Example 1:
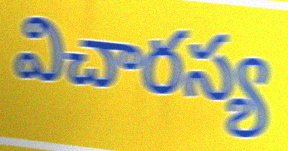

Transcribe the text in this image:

విచారస్య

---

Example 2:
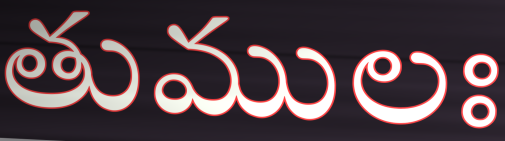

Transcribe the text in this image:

తుములః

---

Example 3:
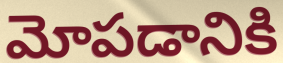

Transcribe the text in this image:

మోపడానికి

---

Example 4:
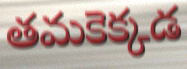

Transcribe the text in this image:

తమకెక్కడ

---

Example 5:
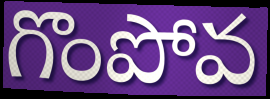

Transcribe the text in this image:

గొంపోవ